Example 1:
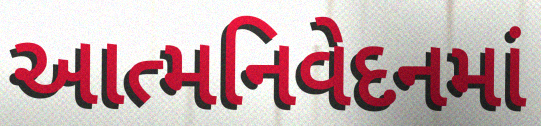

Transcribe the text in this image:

આત્મનિવેદનમાં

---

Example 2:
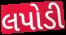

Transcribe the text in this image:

લપોડી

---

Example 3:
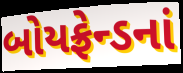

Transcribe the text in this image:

બોયફ્રેન્ડનાં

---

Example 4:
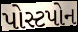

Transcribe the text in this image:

પોસ્ટપોન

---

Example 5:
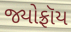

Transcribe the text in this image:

જ્યોફ્રૉય